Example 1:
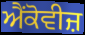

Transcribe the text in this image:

ਐਂਕੋਵੀਜ਼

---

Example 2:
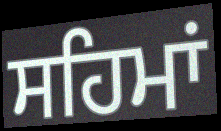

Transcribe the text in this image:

ਸਹਿਮਾਂ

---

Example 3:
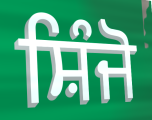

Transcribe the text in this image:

ਸ਼ਿੰਜੋ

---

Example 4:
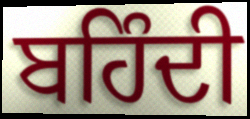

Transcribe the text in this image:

ਬਹਿੰਦੀ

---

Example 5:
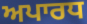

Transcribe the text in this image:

ਅਪਾਰਧ